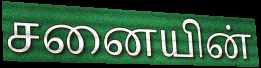
சனையின்